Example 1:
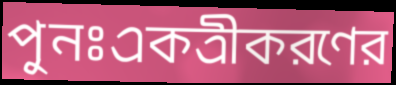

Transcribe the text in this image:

পুনঃএকত্রীকরণের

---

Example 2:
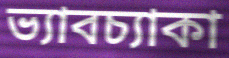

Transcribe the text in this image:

ভ্যাবচ্যাকা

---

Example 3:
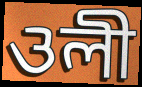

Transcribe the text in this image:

ওলী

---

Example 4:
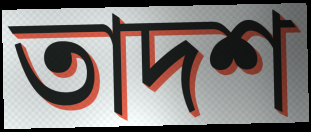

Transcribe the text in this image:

তাদশ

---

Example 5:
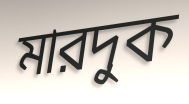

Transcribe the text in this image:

মারদুক